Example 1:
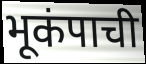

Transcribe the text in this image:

भूकंपाची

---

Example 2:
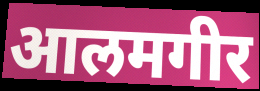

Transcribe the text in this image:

आलमगीर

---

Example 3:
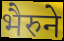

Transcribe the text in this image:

भैरुने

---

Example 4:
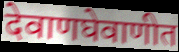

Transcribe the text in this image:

देवाणघेवाणीत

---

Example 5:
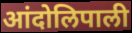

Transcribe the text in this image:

आंदोलिपाली